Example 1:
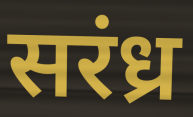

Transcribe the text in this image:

सरंध्र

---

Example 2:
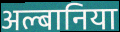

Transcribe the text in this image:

अल्बानिया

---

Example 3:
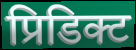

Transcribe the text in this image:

प्रिडिक्ट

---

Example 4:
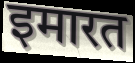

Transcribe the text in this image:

इमारत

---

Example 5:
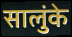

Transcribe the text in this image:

सालुंके